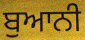
ਬੁਆਨੀ